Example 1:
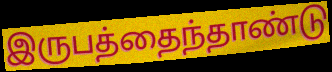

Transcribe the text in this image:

இருபத்தைந்தாண்டு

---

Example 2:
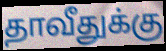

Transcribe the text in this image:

தாவீதுக்கு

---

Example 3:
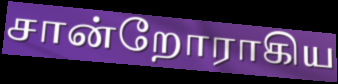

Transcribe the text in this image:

சான்றோராகிய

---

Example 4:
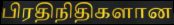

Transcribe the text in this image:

பிரதிநிதிகளான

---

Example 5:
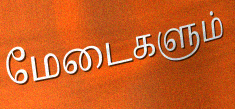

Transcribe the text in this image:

மேடைகளும்